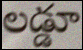
లడ్డూ